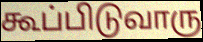
கூப்பிடுவாரு